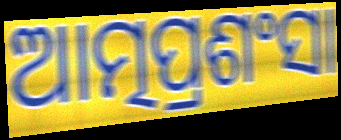
ଆତ୍ମପ୍ରଶଂସା